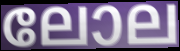
ലോല